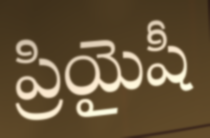
ప్రియైషీ